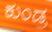
ಕುಂಡ್ರ